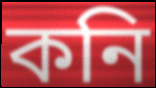
কনি